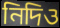
নিদিও